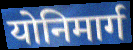
योनिमार्ग